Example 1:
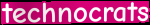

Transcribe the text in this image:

technocrats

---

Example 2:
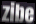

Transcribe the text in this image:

zibe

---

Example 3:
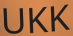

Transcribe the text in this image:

UKK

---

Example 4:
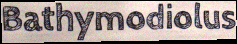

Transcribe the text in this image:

Bathymodiolus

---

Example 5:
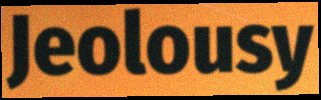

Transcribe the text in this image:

Jeolousy